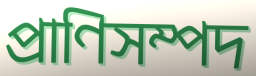
প্রাণিসম্পদ